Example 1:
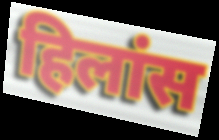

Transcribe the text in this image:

हिलांस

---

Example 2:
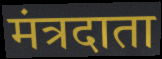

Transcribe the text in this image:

मंत्रदाता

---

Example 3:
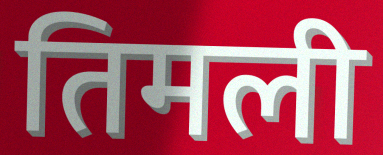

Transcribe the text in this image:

तिमली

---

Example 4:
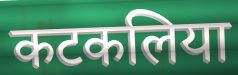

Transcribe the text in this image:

कटकलिया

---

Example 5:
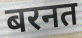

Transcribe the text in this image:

बरनत